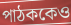
পাঠককেও